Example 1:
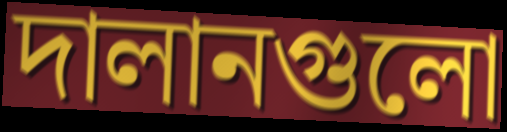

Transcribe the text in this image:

দালানগুলো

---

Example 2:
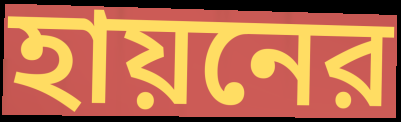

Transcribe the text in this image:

হায়নের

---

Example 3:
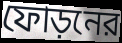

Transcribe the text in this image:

ফোড়নের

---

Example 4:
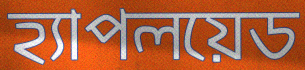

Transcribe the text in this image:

হ্যাপলয়েড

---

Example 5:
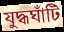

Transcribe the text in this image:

যুদ্ধঘাঁটি